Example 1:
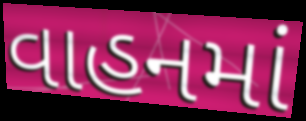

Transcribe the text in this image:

વાહનમાં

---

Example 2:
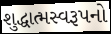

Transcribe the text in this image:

શુદ્ધાત્મસ્વરૂપનો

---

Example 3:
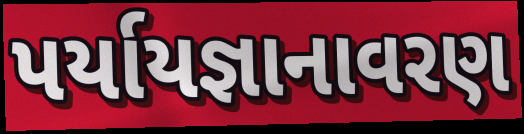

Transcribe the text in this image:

પર્યાયજ્ઞાનાવરણ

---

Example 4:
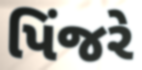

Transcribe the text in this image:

પિંજરે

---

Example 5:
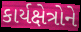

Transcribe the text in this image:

કાર્યક્ષેત્રોને